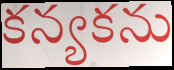
కన్యకను